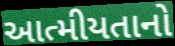
આત્મીયતાનો